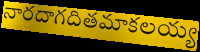
నారదాగదితమాకలయ్య